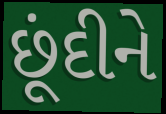
છૂંદીને